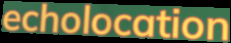
echolocation